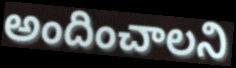
అందించాలని